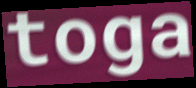
toga